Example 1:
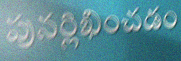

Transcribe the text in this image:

పునర్లిఖించడం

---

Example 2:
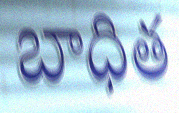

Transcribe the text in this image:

బాధిత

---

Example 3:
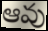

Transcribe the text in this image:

ఆవు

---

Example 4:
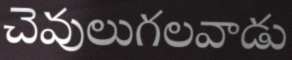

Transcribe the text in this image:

చెవులుగలవాడు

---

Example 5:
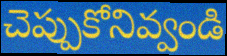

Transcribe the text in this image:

చెప్పుకోనివ్వండి